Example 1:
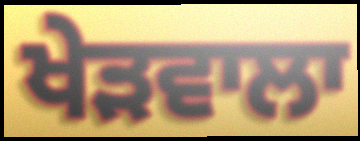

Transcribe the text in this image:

ਖੇੜਵਾਲਾ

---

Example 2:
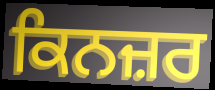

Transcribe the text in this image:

ਕਿਨਜ਼ਰ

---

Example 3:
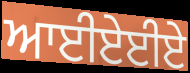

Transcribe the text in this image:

ਆਈਏਈਏ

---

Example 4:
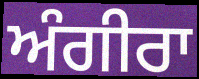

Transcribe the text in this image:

ਅੰਗੀਰਾ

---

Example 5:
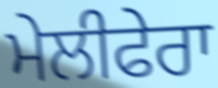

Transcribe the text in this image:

ਮੇਲੀਫੇਰਾ